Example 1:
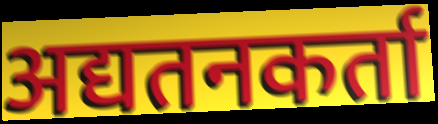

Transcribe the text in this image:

अद्यतनकर्ता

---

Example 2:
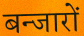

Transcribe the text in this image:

बन्जारों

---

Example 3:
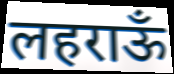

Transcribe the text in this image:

लहराऊँ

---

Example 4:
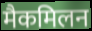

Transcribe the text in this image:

मैकमिलन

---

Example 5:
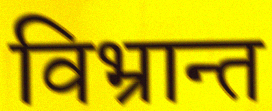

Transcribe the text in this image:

विभ्रान्त